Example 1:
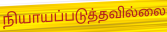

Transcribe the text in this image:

நியாயப்படுத்தவில்லை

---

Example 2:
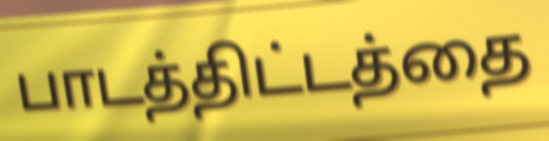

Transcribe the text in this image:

பாடத்திட்டத்தை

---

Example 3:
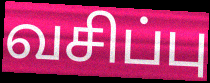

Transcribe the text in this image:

வசிப்பு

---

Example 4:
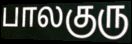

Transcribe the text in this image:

பாலகுரு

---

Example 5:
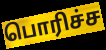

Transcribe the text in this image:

பொரிச்ச